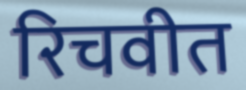
रिचवीत